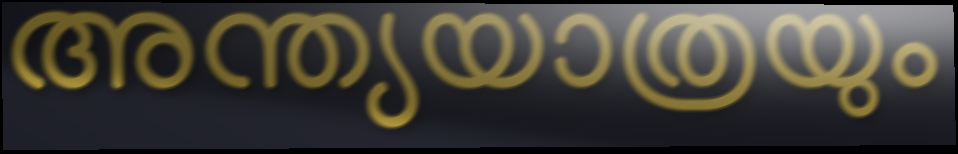
അന്ത്യയാത്രയും